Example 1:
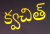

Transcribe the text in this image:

క్వచిత్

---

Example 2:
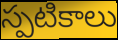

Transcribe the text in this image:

స్పటికాలు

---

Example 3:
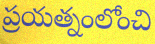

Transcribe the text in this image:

ప్రయత్నంలోంచి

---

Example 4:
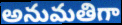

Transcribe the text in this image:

అనుమతిగా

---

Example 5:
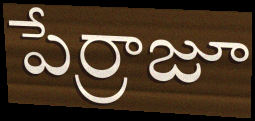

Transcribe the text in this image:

పేర్రాజూ